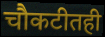
चौकटीतही